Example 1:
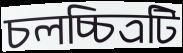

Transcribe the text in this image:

চলচ্চিত্রটি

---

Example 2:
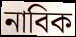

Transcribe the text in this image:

নাবিক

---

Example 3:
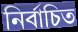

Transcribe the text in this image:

নির্বাচিত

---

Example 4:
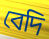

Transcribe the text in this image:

বেদি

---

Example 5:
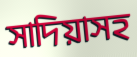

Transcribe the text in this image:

সাদিয়াসহ